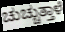
ಚುಚ್ಚುತ್ತಾಳೆ